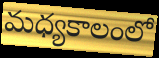
మధ్యకాలంలో